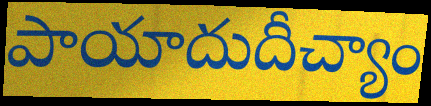
పాయాదుదీచ్యాం